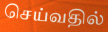
செய்வதில்